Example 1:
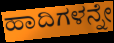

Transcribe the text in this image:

ಹಾದಿಗಳನ್ನೇ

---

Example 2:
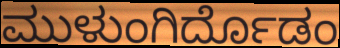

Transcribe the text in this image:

ಮುಳುಂಗಿರ್ದೊಡಂ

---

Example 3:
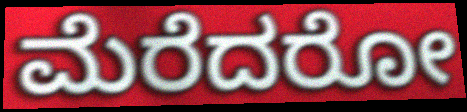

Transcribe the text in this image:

ಮೆರೆದರೋ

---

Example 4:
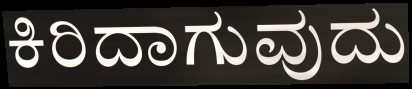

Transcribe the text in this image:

ಕಿರಿದಾಗುವುದು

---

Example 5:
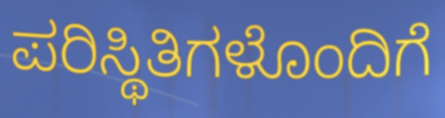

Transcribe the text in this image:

ಪರಿಸ್ಥಿತಿಗಳೊಂದಿಗೆ